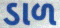
ડાળ